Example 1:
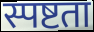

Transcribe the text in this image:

स्पष्टता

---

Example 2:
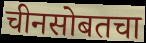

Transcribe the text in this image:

चीनसोबतचा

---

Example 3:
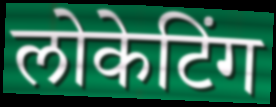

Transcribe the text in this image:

लोकेटिंग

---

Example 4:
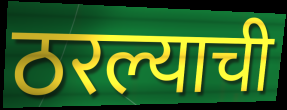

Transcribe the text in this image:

ठरल्याची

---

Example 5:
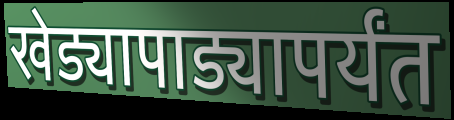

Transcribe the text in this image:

खेड्यापाड्यापर्यंत